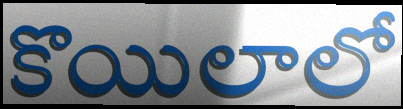
కొయిలాలో